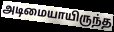
அடிமையாயிருந்த